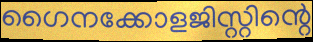
ഗൈനക്കോളജിസ്റ്റിന്റെ